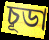
চূডা